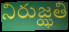
నిరుజ్ఝతి